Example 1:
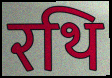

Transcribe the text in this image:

रथि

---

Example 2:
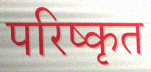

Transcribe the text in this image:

परिष्कृत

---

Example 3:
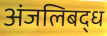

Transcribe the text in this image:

अंजलिबद्ध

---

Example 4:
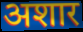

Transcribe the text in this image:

अशार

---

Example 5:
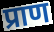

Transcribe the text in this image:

प्राण